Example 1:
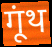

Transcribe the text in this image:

गूंथ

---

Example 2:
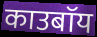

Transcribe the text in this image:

काउबॉय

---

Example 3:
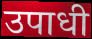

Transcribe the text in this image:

उपाधी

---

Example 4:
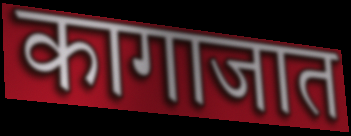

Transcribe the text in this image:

कागाजात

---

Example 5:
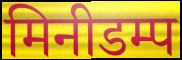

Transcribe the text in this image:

मिनीडम्प